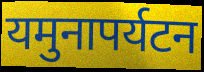
यमुनापर्यटन